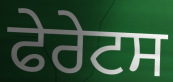
ਫੇਰੇਟਸ